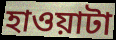
হাওয়াটা